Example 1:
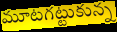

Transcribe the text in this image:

మూటగట్టుకున్న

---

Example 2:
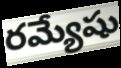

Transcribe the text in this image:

రమ్యేషు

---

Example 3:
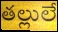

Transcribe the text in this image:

తల్లులే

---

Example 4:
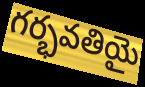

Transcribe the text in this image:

గర్భవతియై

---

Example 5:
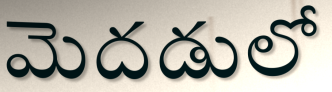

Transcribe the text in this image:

మెదడులో